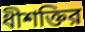
ধীশক্তির